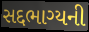
સદ્દભાગ્યની